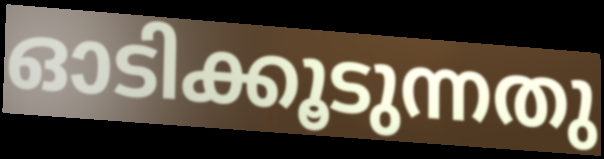
ഓടിക്കൂടുന്നതു